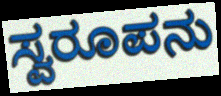
ಸ್ವರೂಪನು